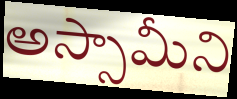
అస్సామీని